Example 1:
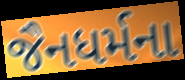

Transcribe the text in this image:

જૈનધર્મના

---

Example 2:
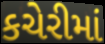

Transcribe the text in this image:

કચેરીમાં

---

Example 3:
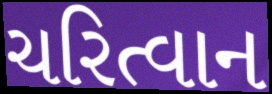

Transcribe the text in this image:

ચરિત્વાન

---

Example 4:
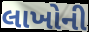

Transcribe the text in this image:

લાખોની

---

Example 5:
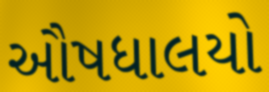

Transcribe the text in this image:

ઔષધાલયો